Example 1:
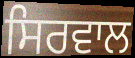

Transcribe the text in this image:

ਸਿਰਵਾਲ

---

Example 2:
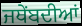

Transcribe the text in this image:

ਜਥੇਂਬਦੀਆਂ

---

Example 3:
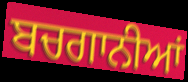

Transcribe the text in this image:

ਬਚਗਾਨੀਆਂ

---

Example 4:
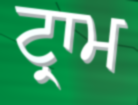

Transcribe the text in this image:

ਟ੍ਰਾਮ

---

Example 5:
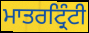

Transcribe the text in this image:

ਮਾਤਰਟ੍ਰਿੰਟੀ